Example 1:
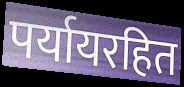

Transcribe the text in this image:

पर्यायरहित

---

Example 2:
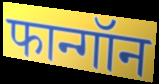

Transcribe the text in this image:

फान्गॉन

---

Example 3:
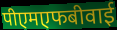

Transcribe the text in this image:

पीएमएफबीवाई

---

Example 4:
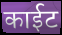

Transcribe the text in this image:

काईट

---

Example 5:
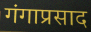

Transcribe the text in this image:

गंगाप्रसाद